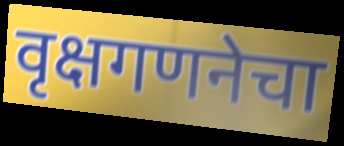
वृक्षगणनेचा